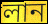
লান